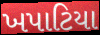
ખપાટિયા